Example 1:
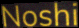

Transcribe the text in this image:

Noshi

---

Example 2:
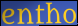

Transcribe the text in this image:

entho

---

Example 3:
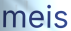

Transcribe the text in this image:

meis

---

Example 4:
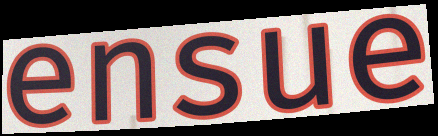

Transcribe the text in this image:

ensue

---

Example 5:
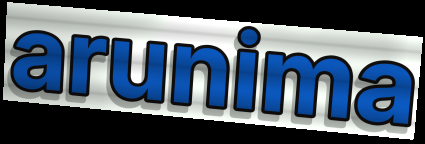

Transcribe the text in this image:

arunima